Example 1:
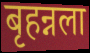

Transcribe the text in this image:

बृहन्नला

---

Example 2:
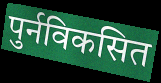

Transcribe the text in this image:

पुर्नविकसित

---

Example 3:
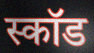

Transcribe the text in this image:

स्कॉड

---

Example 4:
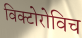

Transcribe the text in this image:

विक्टोरोविच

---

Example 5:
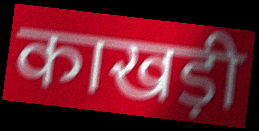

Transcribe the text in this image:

काखड़ी